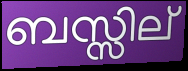
ബസ്സില്